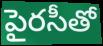
పైరసీతో